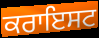
ਕਰਾਇਸਟ